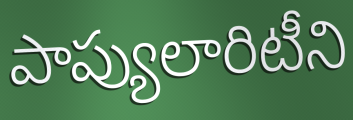
పాప్యులారిటీని